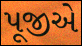
પૂજીએ